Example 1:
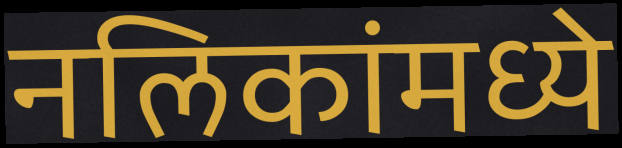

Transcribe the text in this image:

नलिकांमध्ये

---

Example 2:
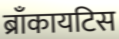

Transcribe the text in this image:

ब्राँकायटिस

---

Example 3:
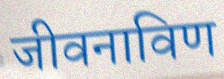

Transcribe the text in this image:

जीवनाविण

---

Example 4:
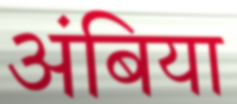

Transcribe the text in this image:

अंबिया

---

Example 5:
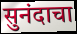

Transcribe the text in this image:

सुनंदाचा